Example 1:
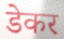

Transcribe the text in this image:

डेकर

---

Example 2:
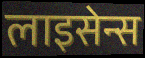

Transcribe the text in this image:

लाइसेन्स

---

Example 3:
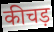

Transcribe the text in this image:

कीचड़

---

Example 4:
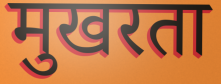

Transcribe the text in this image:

मुखरता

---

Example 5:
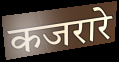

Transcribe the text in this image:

कजरारे